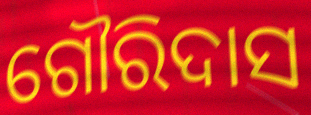
ଗୌରିଦାସ